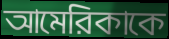
আমেরিকাকে